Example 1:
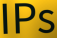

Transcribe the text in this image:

IPs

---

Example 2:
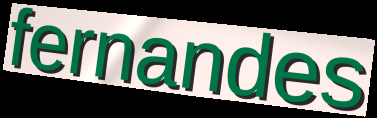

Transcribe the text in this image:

fernandes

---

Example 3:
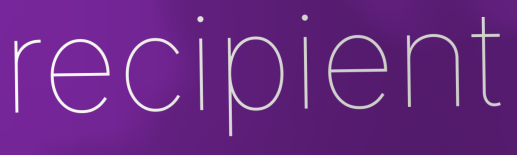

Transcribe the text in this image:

recipient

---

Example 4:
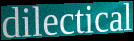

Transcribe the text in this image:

dilectical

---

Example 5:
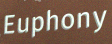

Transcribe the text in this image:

Euphony